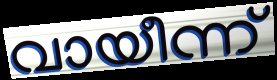
വായീന്ന്